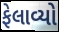
ફેલાવ્યો